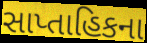
સાપ્તાહિકના